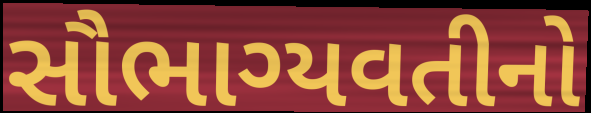
સૌભાગ્યવતીનો